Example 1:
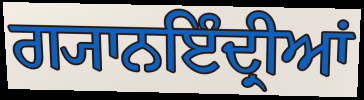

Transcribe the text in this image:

ਗ੍ਯਾਨਇੰਦ੍ਰੀਆਂ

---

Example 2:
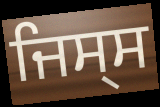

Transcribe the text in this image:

ਜਿਸ੍ਸ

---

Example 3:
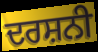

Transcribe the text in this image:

ਦਰਸ਼ਨੀ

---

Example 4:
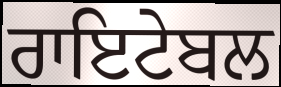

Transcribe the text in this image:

ਰਾਇਟੇਬਲ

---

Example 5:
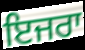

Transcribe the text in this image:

ਇਜਰਾ